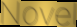
Novel